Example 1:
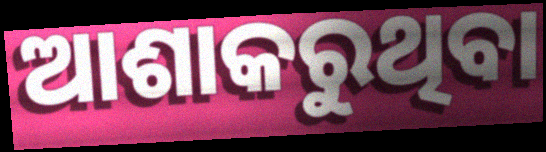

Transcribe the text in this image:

ଆଶାକରୁଥିବା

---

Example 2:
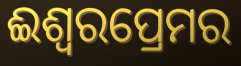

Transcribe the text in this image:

ଈଶ୍ୱରପ୍ରେମର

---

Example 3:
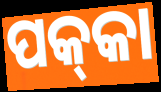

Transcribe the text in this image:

ପକ୍‍କା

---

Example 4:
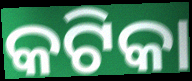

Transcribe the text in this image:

କଟିକା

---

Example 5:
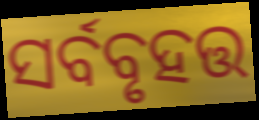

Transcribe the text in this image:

ସର୍ବବୃହତ୍ତ